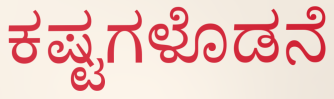
ಕಷ್ಟಗಳೊಡನೆ